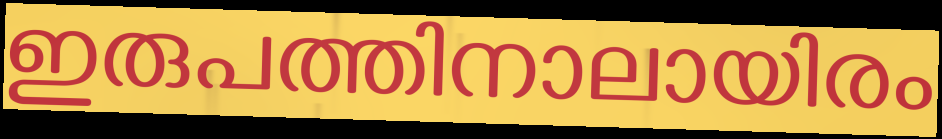
ഇരുപത്തിനാലായിരം